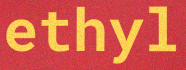
ethyl